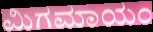
ಮಿಗಮಾಯಂ